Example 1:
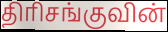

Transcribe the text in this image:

திரிசங்குவின்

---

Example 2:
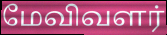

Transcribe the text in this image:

மேவிவளர்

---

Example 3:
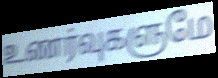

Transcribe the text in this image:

உணர்வுகளுமே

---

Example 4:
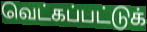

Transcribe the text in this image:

வெட்கப்பட்டுக்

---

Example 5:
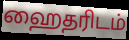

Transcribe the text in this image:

ஹைதரிடம்